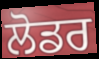
ਲੋਡਰ